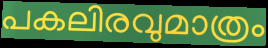
പകലിരവുമാത്രം